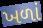
ખળાં